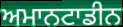
ਅਮਾਨਟਾਡੀਨ